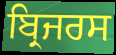
ਬ੍ਰਿਜਰਸ